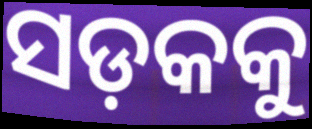
ସଡ଼କକୁ